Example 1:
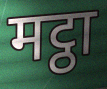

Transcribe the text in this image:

मट्ठा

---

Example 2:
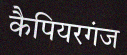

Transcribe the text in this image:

कैपियरगंज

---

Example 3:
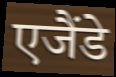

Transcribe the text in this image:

एजैंडे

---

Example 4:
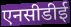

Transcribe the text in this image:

एनसीडीई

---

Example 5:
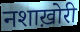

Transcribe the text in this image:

नशाख़ोरी